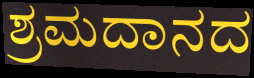
ಶ್ರಮದಾನದ